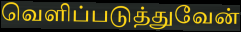
வெளிப்படுத்துவேன்